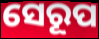
ସେରୂପ